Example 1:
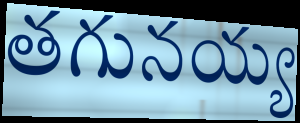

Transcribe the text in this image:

తగునయ్య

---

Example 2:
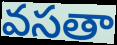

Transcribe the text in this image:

వసతా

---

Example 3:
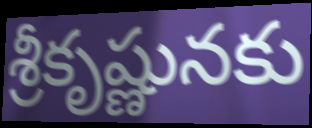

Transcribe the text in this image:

శ్రీకృష్ణునకు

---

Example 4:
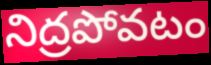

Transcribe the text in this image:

నిద్రపోవటం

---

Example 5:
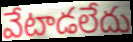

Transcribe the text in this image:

వేటాడలేదు